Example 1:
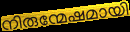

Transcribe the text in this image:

നിരുന്മേഷമായി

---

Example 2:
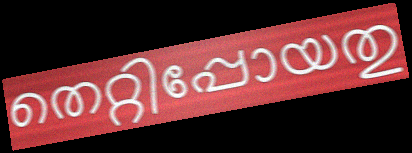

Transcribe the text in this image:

തെറ്റിപ്പോയതു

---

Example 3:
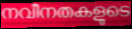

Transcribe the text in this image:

നവീനതകളുടെ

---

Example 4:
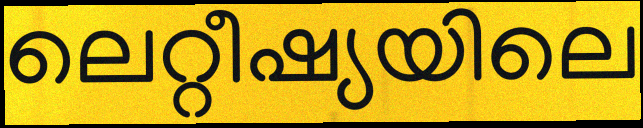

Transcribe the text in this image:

ലെറ്റീഷ്യയിലെ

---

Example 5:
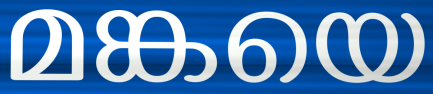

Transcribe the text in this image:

മങ്കയെ